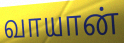
வாயான்